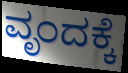
ವೃಂದಕ್ಕೆ